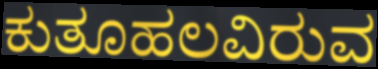
ಕುತೂಹಲವಿರುವ